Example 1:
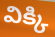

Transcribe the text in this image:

విక్కి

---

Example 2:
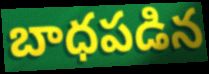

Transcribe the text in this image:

బాధపడిన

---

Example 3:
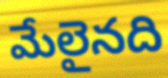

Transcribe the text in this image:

మేలైనది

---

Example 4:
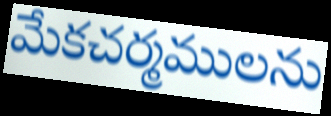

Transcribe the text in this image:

మేకచర్మములను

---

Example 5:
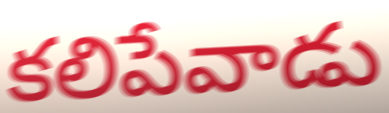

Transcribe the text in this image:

కలిపేవాడు